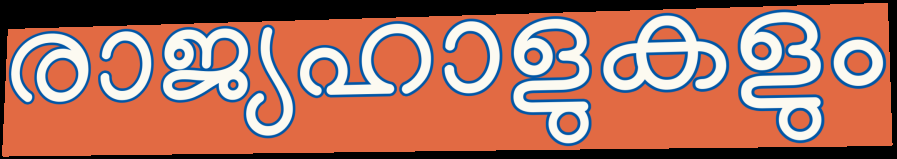
രാജ്യഹാളുകളും